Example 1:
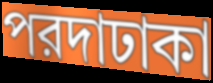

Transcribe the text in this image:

পরদাঢাকা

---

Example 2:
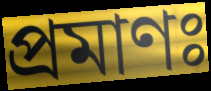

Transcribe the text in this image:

প্রমাণঃ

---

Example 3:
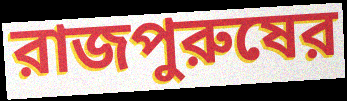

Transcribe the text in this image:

রাজপুরুষের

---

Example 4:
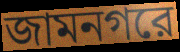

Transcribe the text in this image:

জামনগরে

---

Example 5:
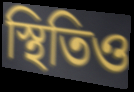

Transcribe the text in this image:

স্থিতিও